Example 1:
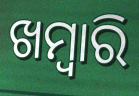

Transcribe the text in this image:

ଖମ୍ୱାରି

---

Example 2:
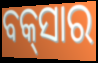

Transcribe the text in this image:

ବକ୍‌ସାର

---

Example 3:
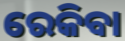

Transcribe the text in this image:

ରେକିବା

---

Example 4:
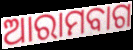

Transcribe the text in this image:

ଆରାମବାଗ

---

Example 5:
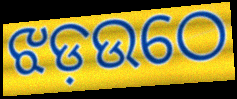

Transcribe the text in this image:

ଝଡ଼ଉଠେ